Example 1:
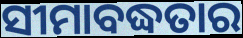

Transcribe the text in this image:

ସୀମାବଦ୍ଧତାର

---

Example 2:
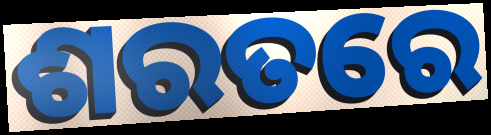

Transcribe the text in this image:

ଶରତରେ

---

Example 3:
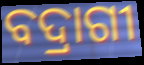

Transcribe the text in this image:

ବଦ୍ରାଗୀ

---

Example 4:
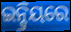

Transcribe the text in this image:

ଇନ୍ଦ୍ରିୟରେ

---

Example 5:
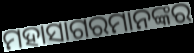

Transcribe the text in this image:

ମହାସାଗରମାନଙ୍କର